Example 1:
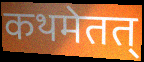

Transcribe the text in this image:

कथमेतत्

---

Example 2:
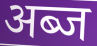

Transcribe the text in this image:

अब्ज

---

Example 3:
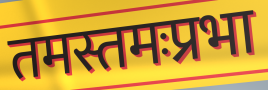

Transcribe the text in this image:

तमस्तमःप्रभा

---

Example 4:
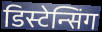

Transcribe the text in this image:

डिस्टेन्सिंग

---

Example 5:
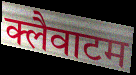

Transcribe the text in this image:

क्लैवाटम